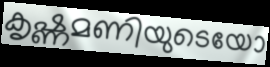
കൃഷ്ണമണിയുടെയോ